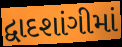
દ્વાદશાંગીમાં